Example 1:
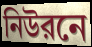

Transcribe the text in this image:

নিউরনে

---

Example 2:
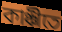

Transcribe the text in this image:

কাঞ্চীতে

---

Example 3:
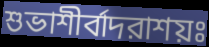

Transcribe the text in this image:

শুভাশীর্বাদরাশয়ঃ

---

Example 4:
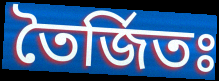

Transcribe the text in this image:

তৈর্জিতঃ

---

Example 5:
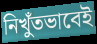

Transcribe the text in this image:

নিখুঁতভাবেই